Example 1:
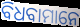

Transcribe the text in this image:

ବିଧବାମାନେ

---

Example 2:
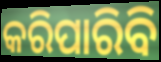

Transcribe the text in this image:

କରିପାରିବି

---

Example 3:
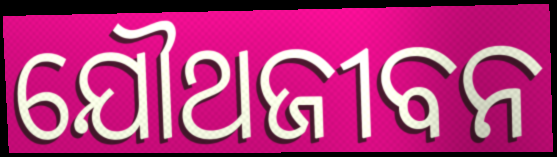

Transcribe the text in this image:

ଯୌଥଜୀବନ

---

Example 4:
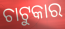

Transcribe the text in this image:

ଚାଟୁକାର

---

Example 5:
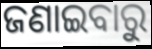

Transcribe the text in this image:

ଜଣାଇବାରୁ